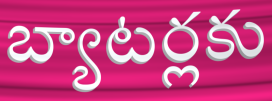
బ్యాటర్లకు